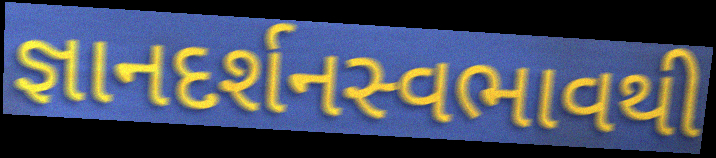
જ્ઞાનદર્શનસ્વભાવથી